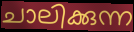
ചാലിക്കുന്ന